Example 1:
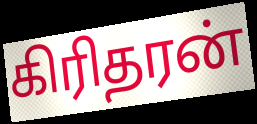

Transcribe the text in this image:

கிரிதரன்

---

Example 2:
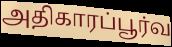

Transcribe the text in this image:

அதிகாரப்பூர்வ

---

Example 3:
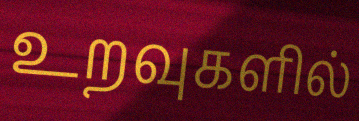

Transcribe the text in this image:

உறவுகளில்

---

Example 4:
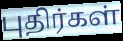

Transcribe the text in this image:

புதிர்கள்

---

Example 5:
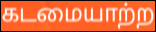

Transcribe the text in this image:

கடமையாற்ற